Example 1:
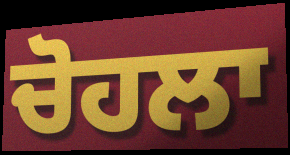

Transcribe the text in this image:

ਚੋਹਲਾ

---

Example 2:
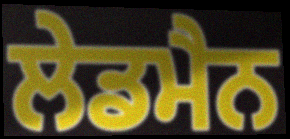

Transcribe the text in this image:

ਲੇਡਮੈਨ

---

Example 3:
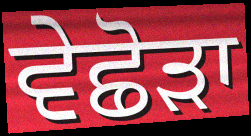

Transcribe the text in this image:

ਵੇਛੋੜਾ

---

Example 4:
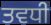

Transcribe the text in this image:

ਤਵਧੀ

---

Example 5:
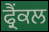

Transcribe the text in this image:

ਫ੍ਰੈਂਕਲ